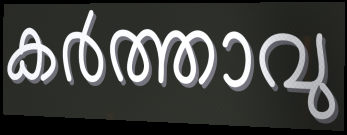
കർത്താവു